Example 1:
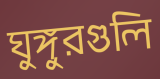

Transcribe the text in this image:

ঘুঙ্গুরগুলি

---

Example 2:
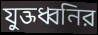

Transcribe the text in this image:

যুক্তধ্বনির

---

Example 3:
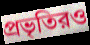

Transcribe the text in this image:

প্রভৃতিরও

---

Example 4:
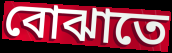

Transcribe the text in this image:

বোঝাতে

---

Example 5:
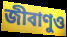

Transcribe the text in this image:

জীবাণুও